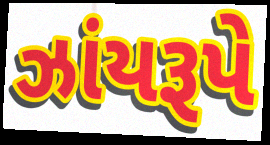
ઝાંયરૂપે